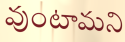
వుంటామని